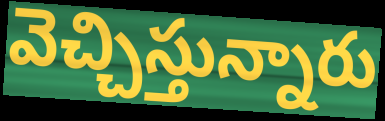
వెచ్చిస్తున్నారు